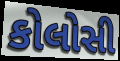
કોલોસી